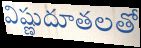
విష్ణుదూతలతో